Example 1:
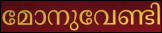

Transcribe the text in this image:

മോനുവേണ്ടി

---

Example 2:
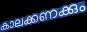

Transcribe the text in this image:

കാലക്കണക്കും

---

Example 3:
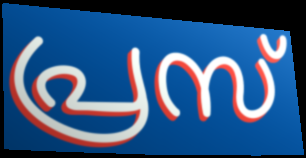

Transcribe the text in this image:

പ്രസ്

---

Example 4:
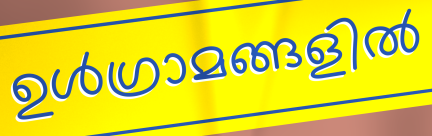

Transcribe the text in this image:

ഉൾഗ്രാമങ്ങളിൽ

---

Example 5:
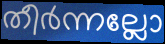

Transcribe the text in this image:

തീർന്നല്ലോ